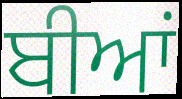
ਬੀਆਂ